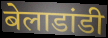
बेलाडांडी